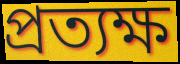
প্ৰত্যক্ষ